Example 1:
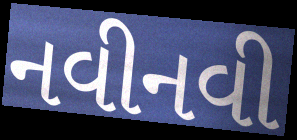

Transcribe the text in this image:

નવીનવી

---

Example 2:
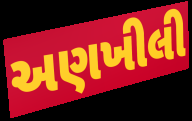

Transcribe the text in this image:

અણખીલી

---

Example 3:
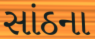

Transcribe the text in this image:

સાંઠના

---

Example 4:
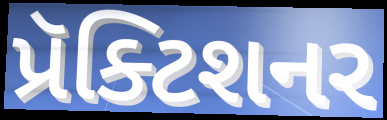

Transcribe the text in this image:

પ્રૅક્ટિશનર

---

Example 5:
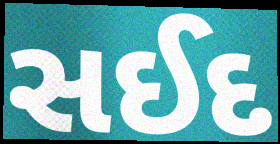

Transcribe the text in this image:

સઈદ